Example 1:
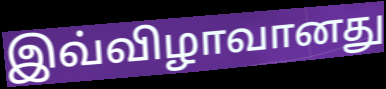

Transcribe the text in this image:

இவ்விழாவானது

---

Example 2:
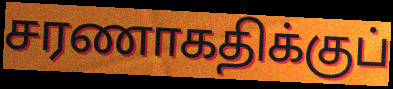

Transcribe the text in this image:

சரணாகதிக்குப்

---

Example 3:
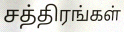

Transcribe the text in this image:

சத்திரங்கள்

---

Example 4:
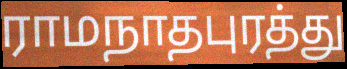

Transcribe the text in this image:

ராமநாதபுரத்து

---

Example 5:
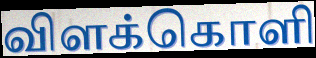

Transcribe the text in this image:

விளக்கொளி